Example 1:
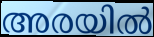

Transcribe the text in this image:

അരയിൽ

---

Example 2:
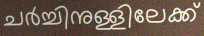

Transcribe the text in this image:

ചർച്ചിനുള്ളിലേക്ക്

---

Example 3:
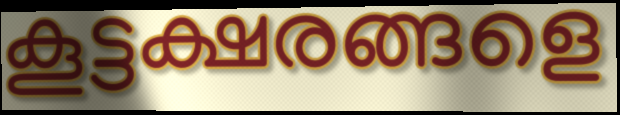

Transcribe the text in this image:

കൂട്ടക്ഷരങ്ങളെ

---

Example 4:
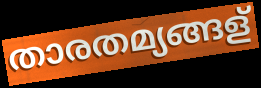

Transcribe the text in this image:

താരതമ്യങ്ങള്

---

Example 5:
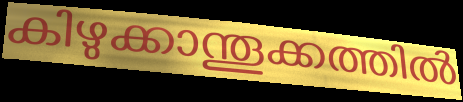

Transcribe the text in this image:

കിഴുക്കാന്തൂക്കത്തിൽ